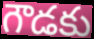
గౌడకు